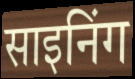
साइनिंग